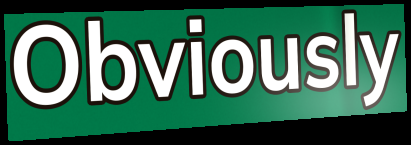
Obviously